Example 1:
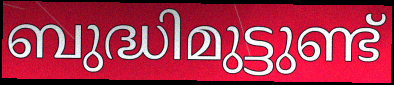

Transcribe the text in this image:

ബുദ്ധിമുട്ടുണ്ട്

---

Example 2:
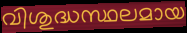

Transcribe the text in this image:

വിശുദ്ധസ്ഥലമായ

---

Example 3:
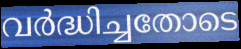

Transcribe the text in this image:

വർദ്ധിച്ചതോടെ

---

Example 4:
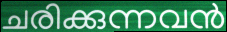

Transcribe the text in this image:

ചരിക്കുന്നവൻ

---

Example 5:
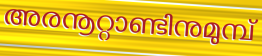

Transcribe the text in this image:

അരനൂറ്റാണ്ടിനുമുമ്പ്